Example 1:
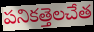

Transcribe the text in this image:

పనికత్తెలచేత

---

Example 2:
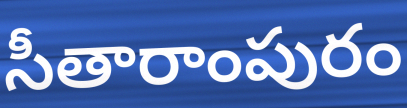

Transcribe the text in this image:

సీతారాంపురం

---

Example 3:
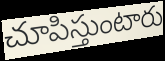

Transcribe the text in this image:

చూపిస్తుంటారు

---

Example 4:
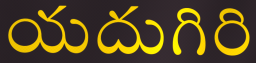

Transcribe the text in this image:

యదుగిరి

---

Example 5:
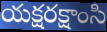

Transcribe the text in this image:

యక్షరక్షాంసి